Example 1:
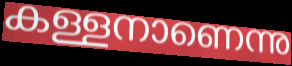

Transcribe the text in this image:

കള്ളനാണെന്നു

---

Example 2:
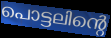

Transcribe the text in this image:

പൊട്ടലിന്റെ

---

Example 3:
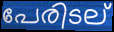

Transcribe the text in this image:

പേരിടല്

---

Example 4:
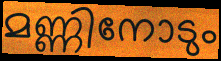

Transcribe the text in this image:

മണ്ണിനോടും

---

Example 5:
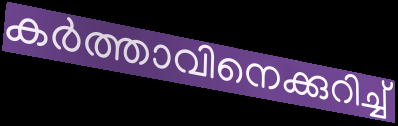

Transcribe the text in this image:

കർത്താവിനെക്കുറിച്ച്